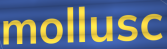
mollusc